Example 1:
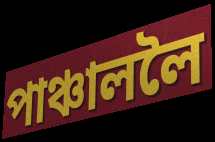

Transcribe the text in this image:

পাঞ্চাললৈ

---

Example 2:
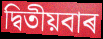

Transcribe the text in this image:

দ্বিতীয়বাৰ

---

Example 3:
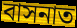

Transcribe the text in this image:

বাসনাত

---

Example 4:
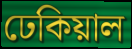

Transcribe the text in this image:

ঢেকিয়াল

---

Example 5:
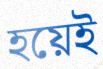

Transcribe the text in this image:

হয়েই